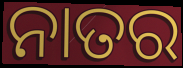
ନାତର